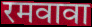
रमवावा